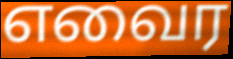
எவைர